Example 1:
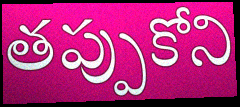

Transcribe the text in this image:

తప్పుకోని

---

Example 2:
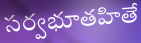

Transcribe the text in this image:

సర్వభూతహితే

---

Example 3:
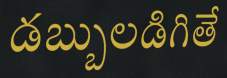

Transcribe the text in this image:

డబ్బులడిగితే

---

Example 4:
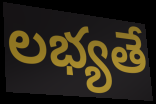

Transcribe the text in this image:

లభ్యతే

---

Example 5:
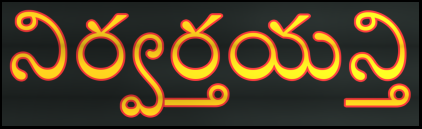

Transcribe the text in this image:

నిర్వర్తయన్తి